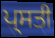
ਪ੍ਸਤੀ